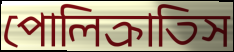
পোলিক্রাতিস